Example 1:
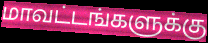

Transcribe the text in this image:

மாவட்டங்களுக்கு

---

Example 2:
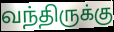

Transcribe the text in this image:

வந்திருக்கு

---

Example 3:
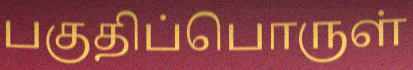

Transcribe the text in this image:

பகுதிப்பொருள்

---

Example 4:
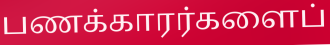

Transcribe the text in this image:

பணக்காரர்களைப்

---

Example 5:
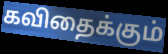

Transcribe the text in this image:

கவிதைக்கும்